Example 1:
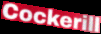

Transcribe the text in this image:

Cockerill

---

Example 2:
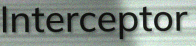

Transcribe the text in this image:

Interceptor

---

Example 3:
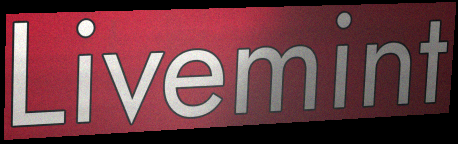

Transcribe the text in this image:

Livemint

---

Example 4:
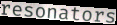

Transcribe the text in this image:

resonators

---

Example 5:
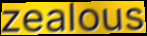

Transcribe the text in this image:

zealous